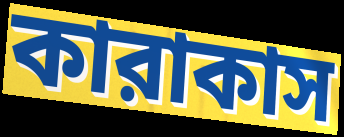
কারাকাস